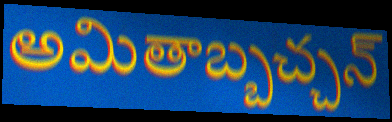
అమితాబ్బచ్చన్